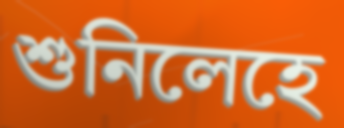
শুনিলেহে